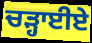
ਚੜ੍ਹਾਈਏ